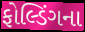
ફોલ્ડિંગના